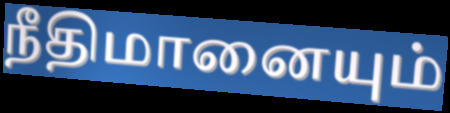
நீதிமானையும்